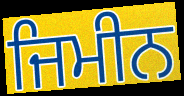
ਜਿਮੀਨ